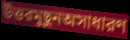
উত্তরমুছুনঅসাধারণ